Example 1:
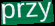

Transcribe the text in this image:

przy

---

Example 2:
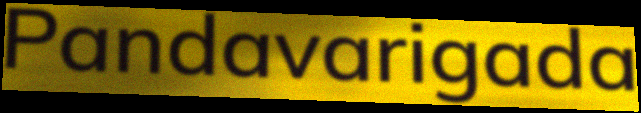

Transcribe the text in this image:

Pandavarigada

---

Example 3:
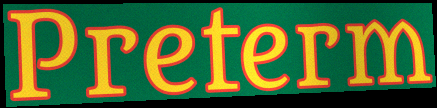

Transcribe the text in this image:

Preterm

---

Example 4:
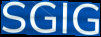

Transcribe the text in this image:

SGIG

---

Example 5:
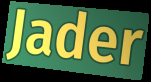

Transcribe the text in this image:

Jader